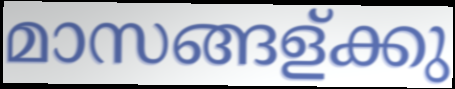
മാസങ്ങള്ക്കു